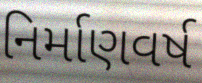
નિર્માણવર્ષ